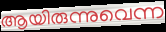
ആയിരുന്നുവെന്ന